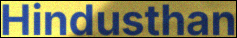
Hindusthan